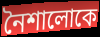
নৈশালোকে